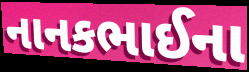
નાનકભાઈના